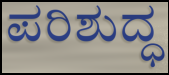
ಪರಿಶುದ್ಧ